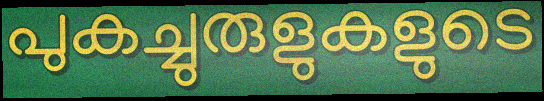
പുകച്ചുരുളുകളുടെ